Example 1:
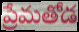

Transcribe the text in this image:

ప్రేమతోడ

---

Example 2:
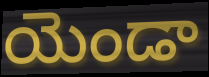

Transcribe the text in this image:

యెండా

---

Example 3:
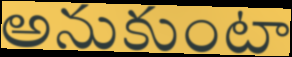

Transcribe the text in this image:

అనుకుంటా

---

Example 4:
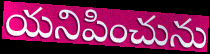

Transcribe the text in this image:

యనిపించును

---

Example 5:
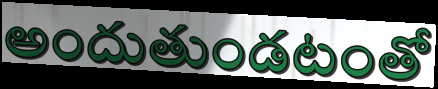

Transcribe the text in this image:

అందుతుండటంతో